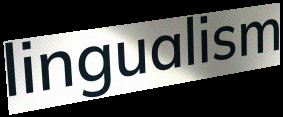
lingualism